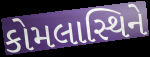
કોમલાસ્થિને